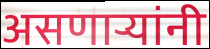
असणाऱ्यांनी